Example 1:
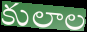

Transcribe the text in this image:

కులాల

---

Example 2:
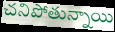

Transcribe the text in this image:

చనిపోతున్నాయి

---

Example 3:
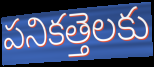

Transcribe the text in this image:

పనికత్తెలకు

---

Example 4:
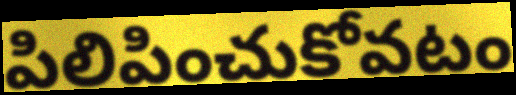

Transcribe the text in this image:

పిలిపించుకోవటం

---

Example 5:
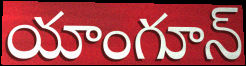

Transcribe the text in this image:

యాంగూన్